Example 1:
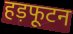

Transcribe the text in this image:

हड़फूटन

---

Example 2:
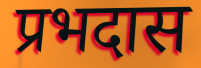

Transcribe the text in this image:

प्रभदास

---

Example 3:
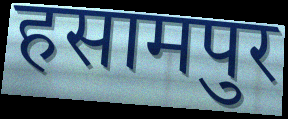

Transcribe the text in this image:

हसामपुर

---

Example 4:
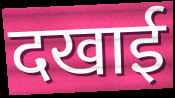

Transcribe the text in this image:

दखाई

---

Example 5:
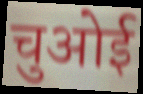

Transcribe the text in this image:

चुओई